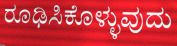
ರೂಢಿಸಿಕೊಳ್ಳುವುದು